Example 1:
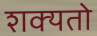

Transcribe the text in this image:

शक्‍यतो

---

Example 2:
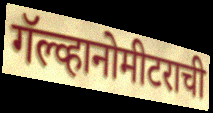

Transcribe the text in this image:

गॅल्व्हानोमीटराची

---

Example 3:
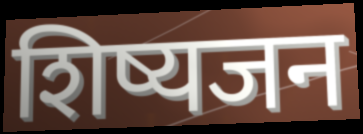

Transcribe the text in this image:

शिष्यजन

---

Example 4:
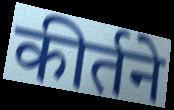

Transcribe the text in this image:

कीर्तने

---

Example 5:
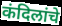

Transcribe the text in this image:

कंदिलांचे